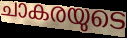
ചാകരയുടെ